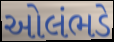
ઓલંભડે